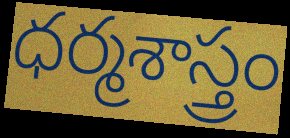
ధర్మశాస్త్రం